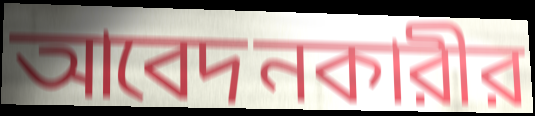
আবেদনকারীর